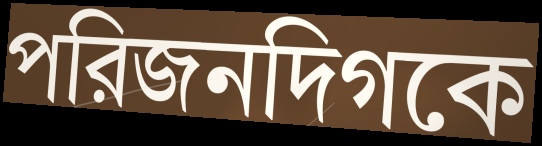
পরিজনদিগকে